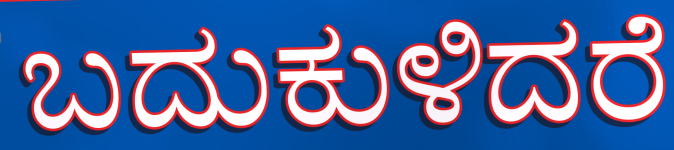
ಬದುಕುಳಿದರೆ